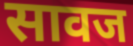
सावज